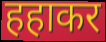
हहाकर